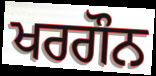
ਖਰਗੌਨ